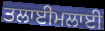
ਤਲਾਈਮਲਾਈ